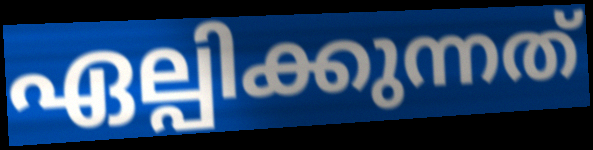
ഏല്പിക്കുന്നത്